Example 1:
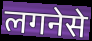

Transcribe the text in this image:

लगनेसे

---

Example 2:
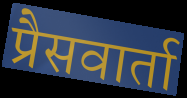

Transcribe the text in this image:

प्रैसवार्ता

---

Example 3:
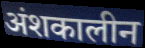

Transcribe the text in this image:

अंशकालीन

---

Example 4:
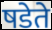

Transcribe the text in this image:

षडेते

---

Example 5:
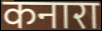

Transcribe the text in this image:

कनारा